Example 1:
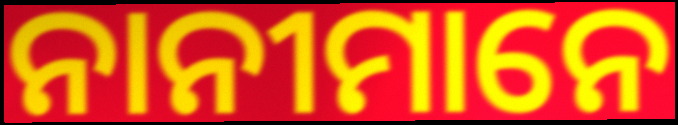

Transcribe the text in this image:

ନାନୀମାନେ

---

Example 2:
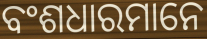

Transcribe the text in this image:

ବଂଶଧାରମାନେ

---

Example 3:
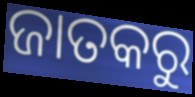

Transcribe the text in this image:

ଜାତକରୁ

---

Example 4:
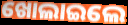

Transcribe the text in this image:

ଖୋଲାଇଲେ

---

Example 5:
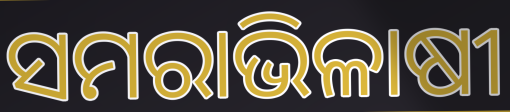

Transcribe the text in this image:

ସମରାଭିଳାଷୀ